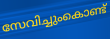
സേവിച്ചുംകൊണ്ട്